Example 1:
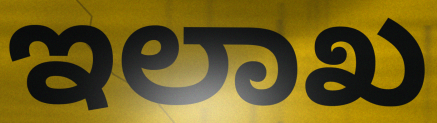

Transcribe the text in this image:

ಇಲಾಖ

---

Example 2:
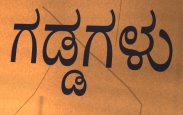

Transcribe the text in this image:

ಗಡ್ಡಗಳು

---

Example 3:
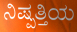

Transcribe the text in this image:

ನಿಷ್ಪತ್ತಿಯ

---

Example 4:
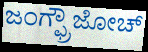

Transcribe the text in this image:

ಜಂಗ್ಫ್ರೌಜೋಚ್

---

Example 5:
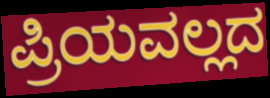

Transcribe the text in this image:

ಪ್ರಿಯವಲ್ಲದ